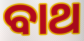
ବାଥ